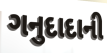
ગનુદાદાની